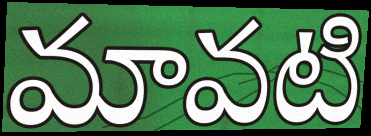
మావటి